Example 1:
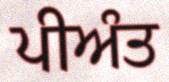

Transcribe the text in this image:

ਪੀਅੰਤ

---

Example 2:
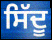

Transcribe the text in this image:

ਸਿੱਦੂ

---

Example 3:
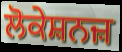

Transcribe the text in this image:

ਲੋਕੇਸ਼ਨਜ਼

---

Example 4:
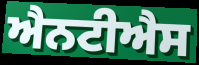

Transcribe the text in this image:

ਐਨਟੀਐਸ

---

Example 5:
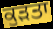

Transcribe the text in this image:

ਕੁੜਤਾ